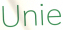
Unie